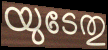
യുടേതു